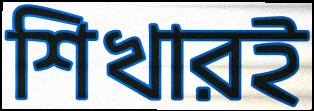
শিখারই